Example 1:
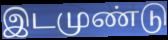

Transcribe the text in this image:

இடமுண்டு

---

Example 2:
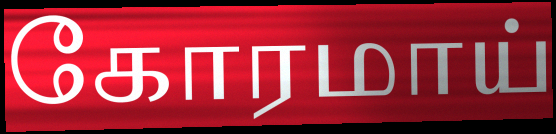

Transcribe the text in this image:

கோரமாய்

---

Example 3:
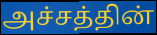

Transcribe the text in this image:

அச்சத்தின்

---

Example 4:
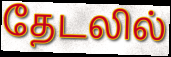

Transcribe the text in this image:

தேடலில்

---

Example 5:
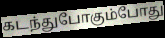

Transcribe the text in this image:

கடந்துபோகும்போது